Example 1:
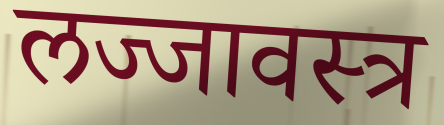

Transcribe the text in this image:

लज्जावस्त्र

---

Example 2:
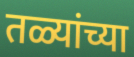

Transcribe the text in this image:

तळ्यांच्या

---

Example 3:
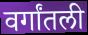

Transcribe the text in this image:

वर्गांतली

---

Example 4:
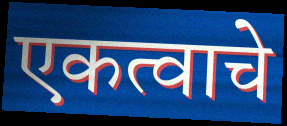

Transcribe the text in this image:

एकत्वाचे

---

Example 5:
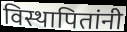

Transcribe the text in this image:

विस्थापितांनी